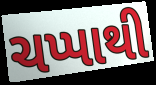
ચપ્પાથી